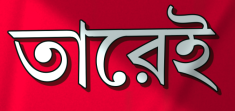
তারেই